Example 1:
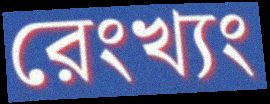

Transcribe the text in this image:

রেংখ্যং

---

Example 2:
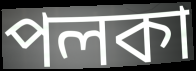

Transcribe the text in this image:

পলকা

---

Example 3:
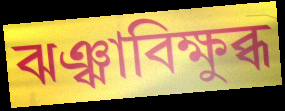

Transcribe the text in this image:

ঝঞ্ঝাবিক্ষুব্ধ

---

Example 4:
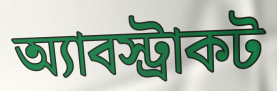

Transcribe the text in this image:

অ্যাবস্ট্রাকট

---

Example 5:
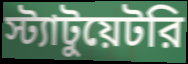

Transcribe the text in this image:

স্ট্যাটুয়েটরি